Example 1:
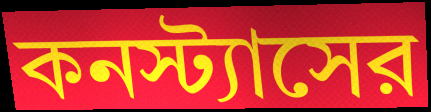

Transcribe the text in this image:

কনস্ট্যাসের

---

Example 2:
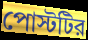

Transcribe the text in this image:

পোস্টটির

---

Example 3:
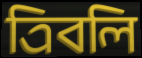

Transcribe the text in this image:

ত্রিবলি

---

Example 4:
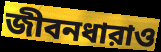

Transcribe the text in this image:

জীবনধারাও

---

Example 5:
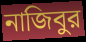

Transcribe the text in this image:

নাজিবুর